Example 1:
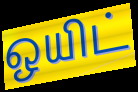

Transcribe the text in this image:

ஒயிட்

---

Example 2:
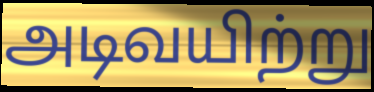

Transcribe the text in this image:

அடிவயிற்று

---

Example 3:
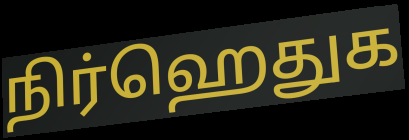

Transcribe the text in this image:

நிர்ஹெதுக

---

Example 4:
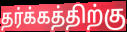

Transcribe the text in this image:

தர்க்கத்திற்கு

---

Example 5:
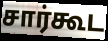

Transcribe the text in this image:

சார்கூட